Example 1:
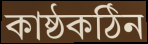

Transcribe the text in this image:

কাষ্ঠকঠিন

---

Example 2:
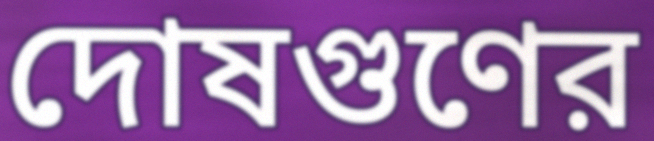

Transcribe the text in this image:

দোষগুণের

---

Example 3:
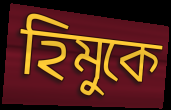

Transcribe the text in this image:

হিমুকে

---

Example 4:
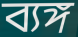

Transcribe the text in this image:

ব্যঙ্গ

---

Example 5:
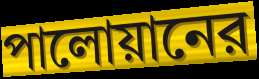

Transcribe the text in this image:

পালোয়ানের